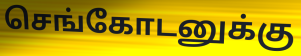
செங்கோடனுக்கு